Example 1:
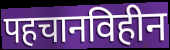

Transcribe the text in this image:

पहचानविहीन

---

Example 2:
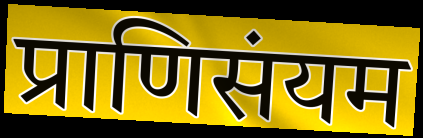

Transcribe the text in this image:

प्राणिसंयम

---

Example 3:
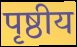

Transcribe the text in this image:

पृष्ठीय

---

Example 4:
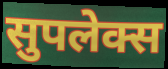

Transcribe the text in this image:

सुपलेक्स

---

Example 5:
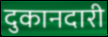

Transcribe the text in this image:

दुकानदारी